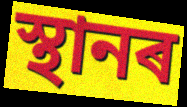
স্থানৰ